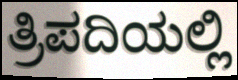
ತ್ರಿಪದಿಯಲ್ಲಿ